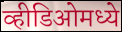
व्हीडिओमध्ये